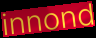
innond